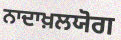
ਨਾਦਾਖ਼ਲਯੋਗ